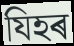
যিহৰ